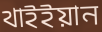
থাইইয়ান